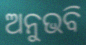
ଅନୁଭବି